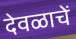
देवळाचें